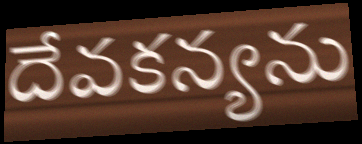
దేవకన్యను